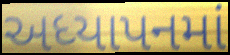
અધ્યાપનમાં